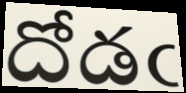
దోడఁ